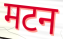
मटन